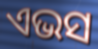
ଏଭସ